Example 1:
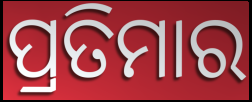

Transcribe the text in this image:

ପ୍ରତିମାର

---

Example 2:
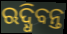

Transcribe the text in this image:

ଋଦ୍ଧିବନ୍ତ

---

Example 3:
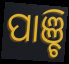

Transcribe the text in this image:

ପାଞ୍ଚି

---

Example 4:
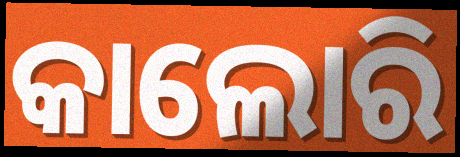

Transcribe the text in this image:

କାଲୋରି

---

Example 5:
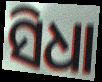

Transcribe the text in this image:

ସିଧା